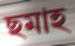
ছমাহ